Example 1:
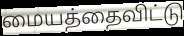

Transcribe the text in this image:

மையத்தைவிட்டு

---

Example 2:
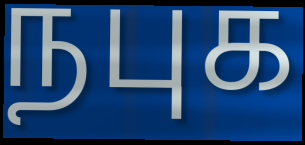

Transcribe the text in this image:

நபுக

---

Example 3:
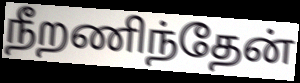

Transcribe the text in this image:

நீறணிந்தேன்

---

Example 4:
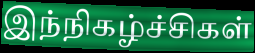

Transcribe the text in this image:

இந்நிகழ்ச்சிகள்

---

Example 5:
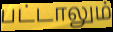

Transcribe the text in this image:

பட்டாலும்